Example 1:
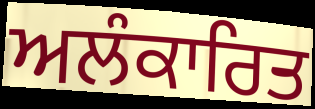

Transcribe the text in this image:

ਅਲੰਕਾਰਿਤ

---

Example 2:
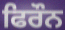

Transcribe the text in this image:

ਫਿਰੌਨ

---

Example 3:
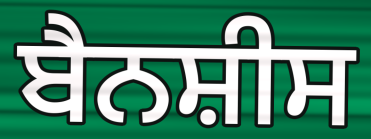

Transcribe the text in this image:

ਬੈਨਸ਼ੀਸ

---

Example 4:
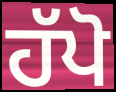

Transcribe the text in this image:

ਹੱਪੋ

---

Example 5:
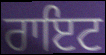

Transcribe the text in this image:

ਰਾਇਟ